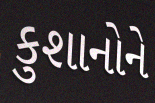
કુશાનોને